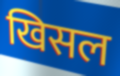
खिसल